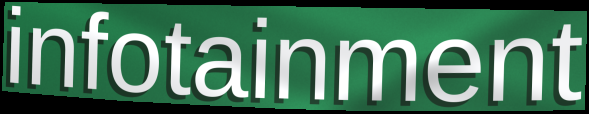
infotainment